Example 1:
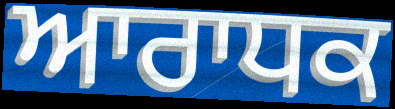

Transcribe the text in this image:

ਆਰਾਧਕ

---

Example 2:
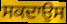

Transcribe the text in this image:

ਸਕਦਾਉਸ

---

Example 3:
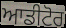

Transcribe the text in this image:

ਆਡੀਟੋਰ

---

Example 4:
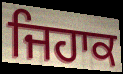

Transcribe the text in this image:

ਜਿਹਾਕ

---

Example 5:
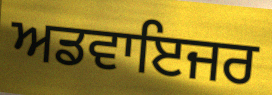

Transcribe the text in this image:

ਅਡਵਾਇਜਰ